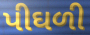
પીઘળી